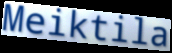
Meiktila